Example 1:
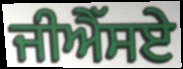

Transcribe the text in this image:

ਜੀਐੱਸਏ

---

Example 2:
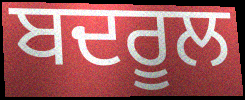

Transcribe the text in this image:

ਬਦਰੂਲ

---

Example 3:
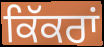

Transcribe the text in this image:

ਕਿੱਕਰਾਂ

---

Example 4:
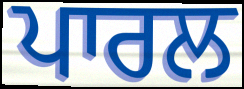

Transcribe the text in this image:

ਪਾਰਲ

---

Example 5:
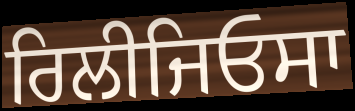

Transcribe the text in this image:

ਰਿਲੀਜਿਓਸਾ